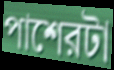
পাশেরটা